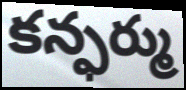
కన్ఫర్ము